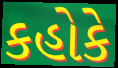
કહોકે